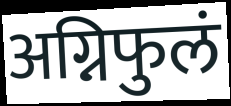
अग्निफुलं